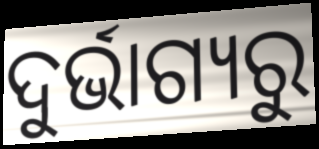
ଦୁର୍ଭାଗ୍ୟରୁ